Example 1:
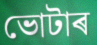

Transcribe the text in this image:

ভোটাৰ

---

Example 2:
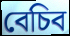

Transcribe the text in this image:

বেচিব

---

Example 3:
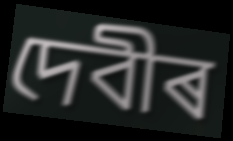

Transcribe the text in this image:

দেবীৰ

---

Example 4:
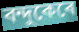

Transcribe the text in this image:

বন্দুকেৰে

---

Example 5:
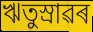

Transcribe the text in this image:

ঋতুস্ৰাৱৰ